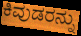
ಕಿವುಡರನ್ನು